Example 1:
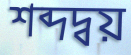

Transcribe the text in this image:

শব্দদ্বয়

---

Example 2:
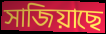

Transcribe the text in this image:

সাজিয়াছে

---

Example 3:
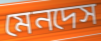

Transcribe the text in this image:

মেনদেস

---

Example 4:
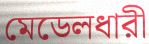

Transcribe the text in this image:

মেডেলধারী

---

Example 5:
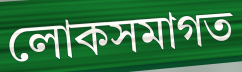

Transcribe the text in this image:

লোকসমাগত